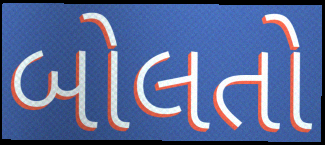
બોલતો